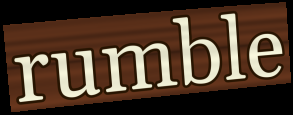
rumble